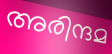
അരിന്ദമ